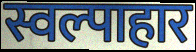
स्वल्पाहार